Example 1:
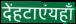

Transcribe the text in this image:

देंहटाएंयहाँ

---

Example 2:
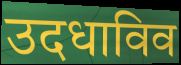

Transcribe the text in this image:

उदधाविव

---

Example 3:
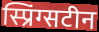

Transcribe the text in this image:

स्प्रिंग्सटीन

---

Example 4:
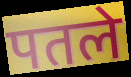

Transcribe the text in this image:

पतले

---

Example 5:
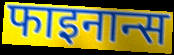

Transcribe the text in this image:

फाइनान्स